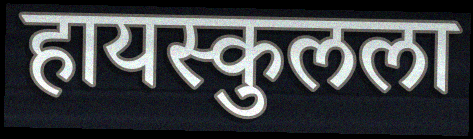
हायस्कुलला